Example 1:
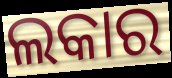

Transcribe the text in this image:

ଲକାର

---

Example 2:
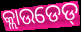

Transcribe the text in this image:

କ୍ଲାଉଡେଡ୍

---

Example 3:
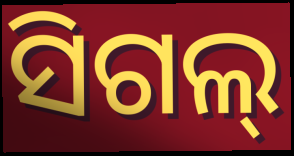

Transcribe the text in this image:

ସିଗଲ୍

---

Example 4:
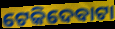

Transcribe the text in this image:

ଟେକିଦେବାଟା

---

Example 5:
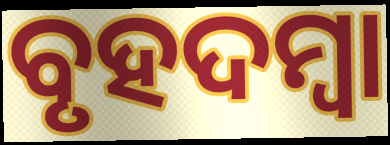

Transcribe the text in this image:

ବୃହଦମ୍ବା